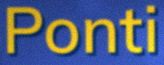
Ponti